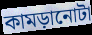
কামড়ানোটা